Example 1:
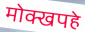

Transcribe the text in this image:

मोक्खपहे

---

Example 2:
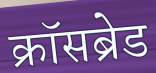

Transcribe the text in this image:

क्रॉसब्रेड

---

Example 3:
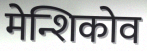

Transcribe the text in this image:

मेन्शिकोव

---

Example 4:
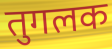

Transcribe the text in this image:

तुगलक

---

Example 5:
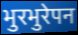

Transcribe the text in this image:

भुरभुरेपन